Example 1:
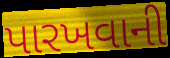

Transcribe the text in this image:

પારખવાની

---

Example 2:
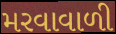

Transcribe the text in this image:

મરવાવાળી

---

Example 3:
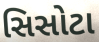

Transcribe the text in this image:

સિસોટા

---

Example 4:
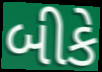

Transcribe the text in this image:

બીકે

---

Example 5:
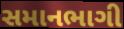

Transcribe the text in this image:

સમાનભાગી